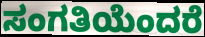
ಸಂಗತಿಯೆಂದರೆ